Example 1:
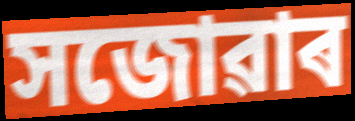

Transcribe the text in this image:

সজোৱাৰ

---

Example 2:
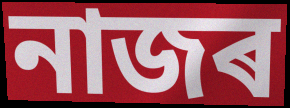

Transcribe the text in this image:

নাজৰ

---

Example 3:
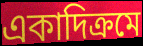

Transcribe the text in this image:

একাদিক্ৰমে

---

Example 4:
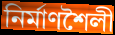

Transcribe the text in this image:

নিৰ্মাণশৈলী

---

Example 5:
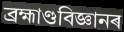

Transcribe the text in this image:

ব্ৰহ্মাণ্ডবিজ্ঞানৰ